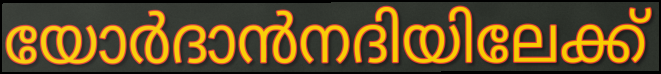
യോർദാൻനദിയിലേക്ക്